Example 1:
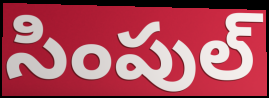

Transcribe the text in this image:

సింపుల్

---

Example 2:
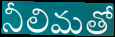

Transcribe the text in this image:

నీలిమతో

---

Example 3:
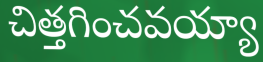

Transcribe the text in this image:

చిత్తగించవయ్యా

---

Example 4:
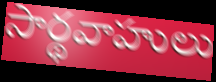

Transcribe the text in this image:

సార్థవాహులు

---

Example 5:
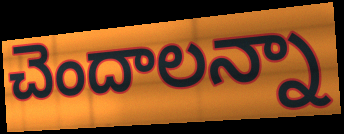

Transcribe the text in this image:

చెందాలన్నా